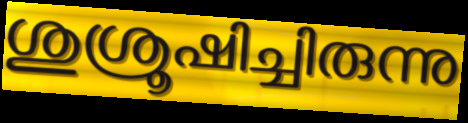
ശുശ്രൂഷിച്ചിരുന്നു